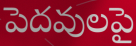
పెదవులపై